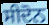
ਸੀਦੋਨ